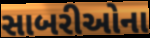
સાબરીઓના